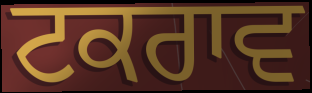
ਟਕਰਾਵ